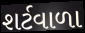
શર્ટવાળા